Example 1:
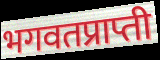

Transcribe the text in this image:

भगवतप्राप्ती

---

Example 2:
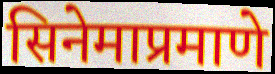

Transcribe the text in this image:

सिनेमाप्रमाणे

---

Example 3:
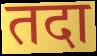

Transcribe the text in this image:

तदा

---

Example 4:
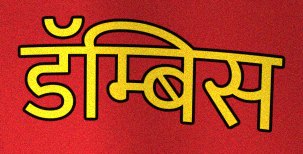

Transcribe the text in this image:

डॅम्बिस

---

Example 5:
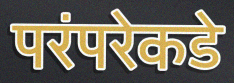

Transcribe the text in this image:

परंपरेकडे